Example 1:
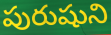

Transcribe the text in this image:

పురుషుని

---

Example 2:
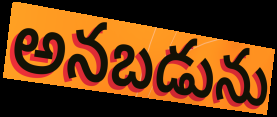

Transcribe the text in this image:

అనబడును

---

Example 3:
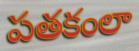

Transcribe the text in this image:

పతకంలా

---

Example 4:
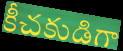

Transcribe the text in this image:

కీచకుడిగా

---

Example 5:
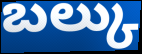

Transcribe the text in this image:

బల్కు